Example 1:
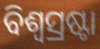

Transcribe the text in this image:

ବିଶ୍ୱସ୍ରଷ୍ଟା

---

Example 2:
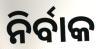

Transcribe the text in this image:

ନିର୍ବାକ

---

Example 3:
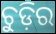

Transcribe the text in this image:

ଚୁଡ଼ିର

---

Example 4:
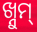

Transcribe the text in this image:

ଖ୍ନୁମ୍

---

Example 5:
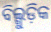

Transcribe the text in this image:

ବିଲ୍ଗୁଡ଼ିକ